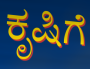
ಕೃಷಿಗೆ